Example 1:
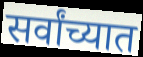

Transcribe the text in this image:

सर्वांच्यात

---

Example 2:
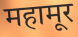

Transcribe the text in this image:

महामूर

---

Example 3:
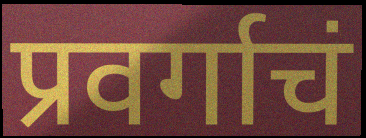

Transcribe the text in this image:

प्रवर्गाचं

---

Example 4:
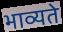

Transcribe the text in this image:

भाव्यते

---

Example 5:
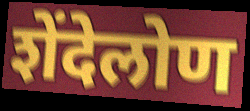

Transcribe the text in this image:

शेंदेलोण